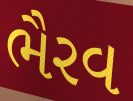
ભૈરવ